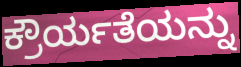
ಕ್ರೌರ್ಯತೆಯನ್ನು